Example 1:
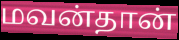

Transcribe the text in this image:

மவன்தான்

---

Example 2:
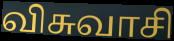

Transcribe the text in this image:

விசுவாசி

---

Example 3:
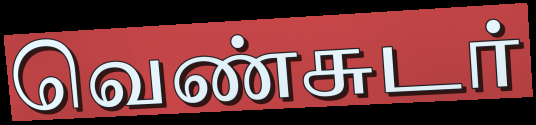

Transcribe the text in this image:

வெண்சுடர்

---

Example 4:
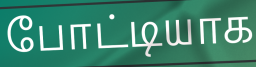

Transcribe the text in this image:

போட்டியாக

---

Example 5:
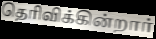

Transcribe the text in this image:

தெரிவிக்கின்றார்